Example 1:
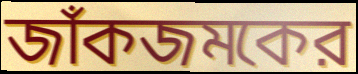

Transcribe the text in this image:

জাঁকজমকের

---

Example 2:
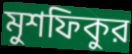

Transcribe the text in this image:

মুশফিকুর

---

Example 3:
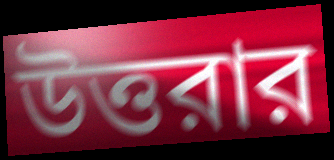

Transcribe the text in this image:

উত্তরার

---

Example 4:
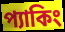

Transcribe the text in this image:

প্যাকিং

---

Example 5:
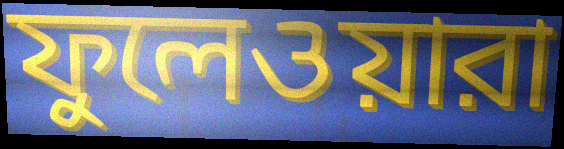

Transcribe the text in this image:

ফুলেওয়ারা